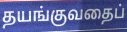
தயங்குவதைப்